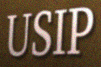
USIP